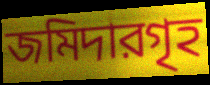
জমিদারগৃহ